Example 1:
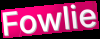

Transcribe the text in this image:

Fowlie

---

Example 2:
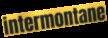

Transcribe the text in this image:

intermontane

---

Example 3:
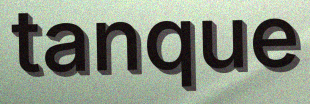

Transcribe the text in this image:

tanque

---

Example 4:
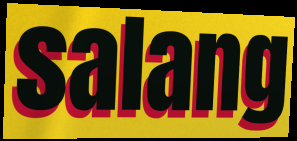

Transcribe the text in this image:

salang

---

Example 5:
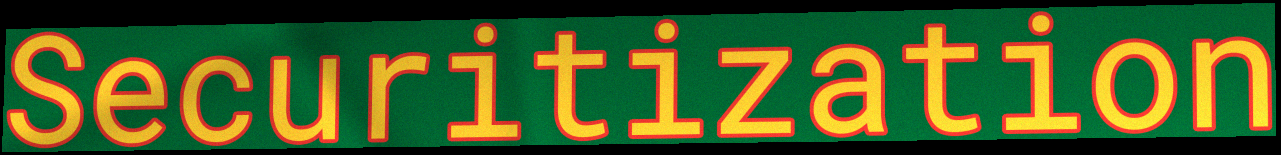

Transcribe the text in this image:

Securitization